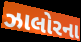
ઝાલોરના